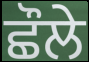
ਛੌਲੇ